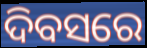
ଦିବସରେ